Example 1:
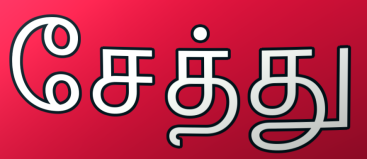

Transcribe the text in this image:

சேத்து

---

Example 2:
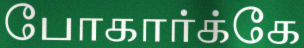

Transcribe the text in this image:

போகார்க்கே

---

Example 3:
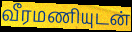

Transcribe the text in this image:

வீரமணியுடன்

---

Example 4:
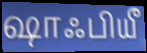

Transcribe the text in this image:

ஷாஃபியீ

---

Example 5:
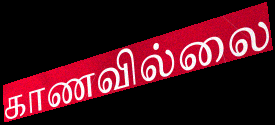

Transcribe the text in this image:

காணவில்லை